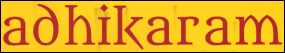
adhikaram